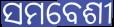
ସମବେଶୀ